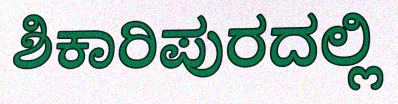
ಶಿಕಾರಿಪುರದಲ್ಲಿ